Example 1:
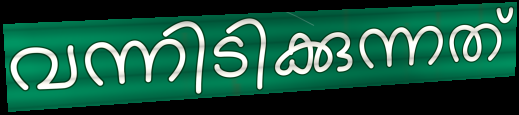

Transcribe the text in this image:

വന്നിടിക്കുന്നത്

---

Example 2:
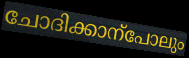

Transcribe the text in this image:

ചോദിക്കാന്പോലും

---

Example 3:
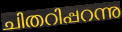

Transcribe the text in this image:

ചിതറിപ്പറന്നു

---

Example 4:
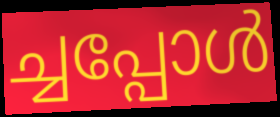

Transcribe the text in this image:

ച്ചപ്പോൾ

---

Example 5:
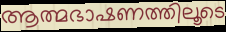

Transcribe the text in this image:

ആത്മഭാഷണത്തിലൂടെ